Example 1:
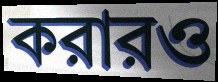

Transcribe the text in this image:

করারও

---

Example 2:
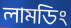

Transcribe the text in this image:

লামডিং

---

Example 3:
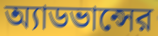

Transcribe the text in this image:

অ্যাডভান্সের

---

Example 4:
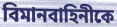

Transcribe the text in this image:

বিমানবাহিনীকে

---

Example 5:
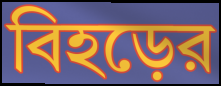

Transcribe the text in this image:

বিহড়ের